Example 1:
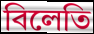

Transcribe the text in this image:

বিলেতি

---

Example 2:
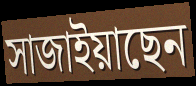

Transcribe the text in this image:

সাজাইয়াছেন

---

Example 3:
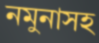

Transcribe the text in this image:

নমুনাসহ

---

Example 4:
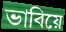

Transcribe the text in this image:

ভাবিয়ে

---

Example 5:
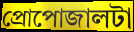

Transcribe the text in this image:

প্রোপোজালটা